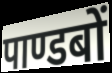
पाण्डबों